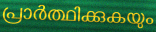
പ്രാർത്ഥിക്കുകയും